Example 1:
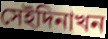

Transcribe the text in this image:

সেইদিনাখন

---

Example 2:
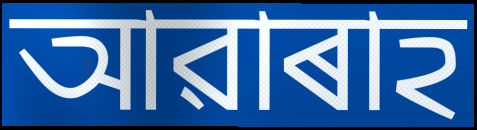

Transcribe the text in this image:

আৱাৰাহ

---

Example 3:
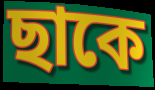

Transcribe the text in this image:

ছাকে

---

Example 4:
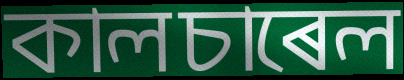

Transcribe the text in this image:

কালচাৰেল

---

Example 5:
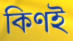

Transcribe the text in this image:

কিণই